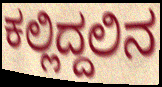
ಕಲ್ಲಿದ್ದಲಿನ